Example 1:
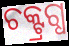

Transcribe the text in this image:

ଚକ୍ଟ୍ରଗ୍ଧ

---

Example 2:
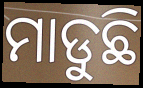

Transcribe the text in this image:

ମାଡୁଛି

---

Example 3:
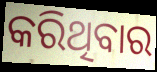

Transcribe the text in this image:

କରିଥିବାର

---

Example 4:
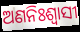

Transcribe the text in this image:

ଅଣନିଃଶ୍ଵାସୀ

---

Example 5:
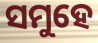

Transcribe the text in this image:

ସମୁହେ